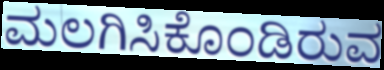
ಮಲಗಿಸಿಕೊಂಡಿರುವ